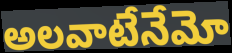
అలవాటేనేమో